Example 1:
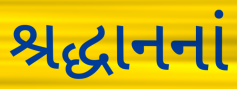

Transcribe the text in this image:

શ્રદ્ધાનનાં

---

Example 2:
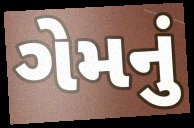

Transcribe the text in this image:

ગેમનું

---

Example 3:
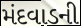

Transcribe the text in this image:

મંદવાડની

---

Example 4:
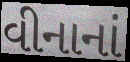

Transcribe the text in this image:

વીનાનાં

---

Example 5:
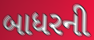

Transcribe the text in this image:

બાધરની